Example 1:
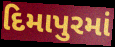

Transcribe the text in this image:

દિમાપુરમાં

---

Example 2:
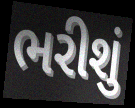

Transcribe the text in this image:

ભરીશું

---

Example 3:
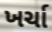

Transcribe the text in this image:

ખર્ચા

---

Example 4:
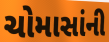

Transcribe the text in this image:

ચોમાસાંની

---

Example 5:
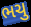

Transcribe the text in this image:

ભચુ